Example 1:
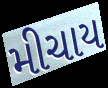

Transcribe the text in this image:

મીચાય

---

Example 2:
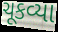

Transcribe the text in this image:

ચૂકવ્યા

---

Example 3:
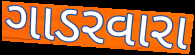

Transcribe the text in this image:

ગાડરવારા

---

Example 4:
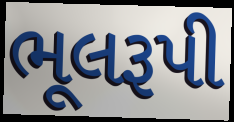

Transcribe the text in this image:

ભૂલરૂપી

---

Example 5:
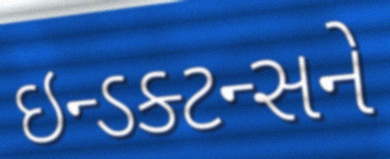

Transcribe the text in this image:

ઇન્ડક્ટન્સને